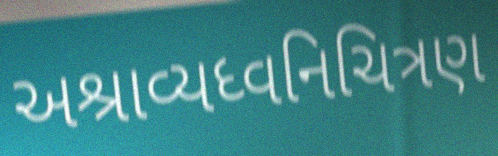
અશ્રાવ્યધ્વનિચિત્રણ